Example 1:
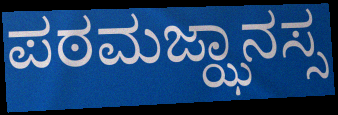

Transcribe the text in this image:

ಪಠಮಜ್ಝಾನಸ್ಸ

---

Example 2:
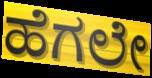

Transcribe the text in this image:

ಹೆಗಲೇ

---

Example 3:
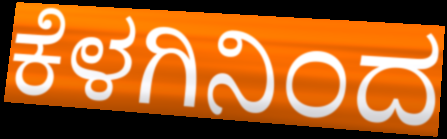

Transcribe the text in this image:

ಕೆಳಗಿನಿಂದ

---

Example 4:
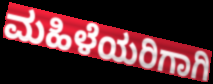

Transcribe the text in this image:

ಮಹಿಳೆಯರಿಗಾಗಿ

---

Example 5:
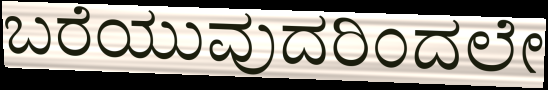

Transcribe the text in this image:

ಬರೆಯುವುದರಿಂದಲೇ